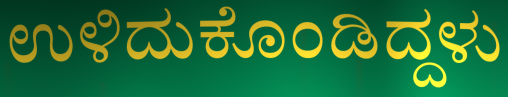
ಉಳಿದುಕೊಂಡಿದ್ದಳು